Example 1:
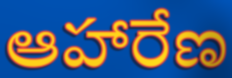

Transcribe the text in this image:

ఆహారేణ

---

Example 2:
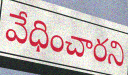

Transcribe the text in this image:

వేధించారని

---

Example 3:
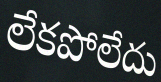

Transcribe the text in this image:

లేకపోలేదు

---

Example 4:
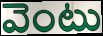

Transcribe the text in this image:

వెంటు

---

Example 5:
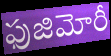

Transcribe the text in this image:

ఫుజిమోరీ